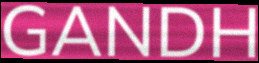
GANDH